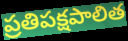
ప్రతిపక్షపాలిత